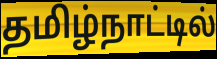
தமிழ்நாட்டில்